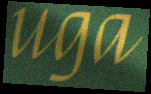
uga